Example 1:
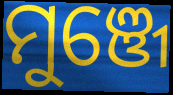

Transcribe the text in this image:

ମୁଞ୍ଜେ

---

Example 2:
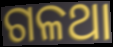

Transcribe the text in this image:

ଗଳଥା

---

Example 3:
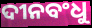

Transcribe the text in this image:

ଦୀନବଂଧୁ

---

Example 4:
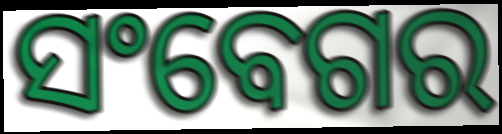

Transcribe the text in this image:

ସଂବେଗର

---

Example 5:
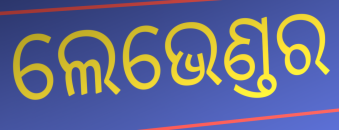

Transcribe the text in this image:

ଲେଭେଣ୍ଡର